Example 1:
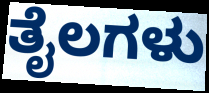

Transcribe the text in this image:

ತೈಲಗಳು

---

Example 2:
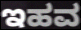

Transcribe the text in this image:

ಇಹವ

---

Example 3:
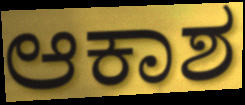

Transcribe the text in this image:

ಆಕಾಶ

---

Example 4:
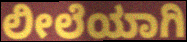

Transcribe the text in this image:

ಲೀಲೆಯಾಗಿ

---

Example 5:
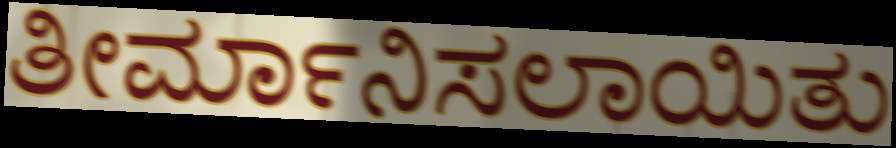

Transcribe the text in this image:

ತೀರ್ಮಾನಿಸಲಾಯಿತು